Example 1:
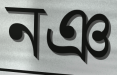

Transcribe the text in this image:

নঞ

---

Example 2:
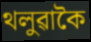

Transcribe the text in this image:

থলুৱাকৈ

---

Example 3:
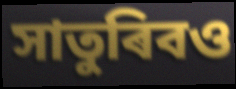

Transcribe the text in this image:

সাতুৰিবও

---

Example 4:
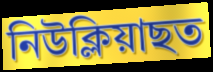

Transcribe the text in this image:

নিউক্লিয়াছত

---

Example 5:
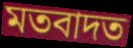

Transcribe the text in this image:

মতবাদত